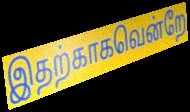
இதற்காகவென்றே